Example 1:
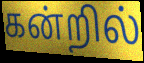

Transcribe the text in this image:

கன்றில்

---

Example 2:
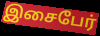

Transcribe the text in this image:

இசைபேர்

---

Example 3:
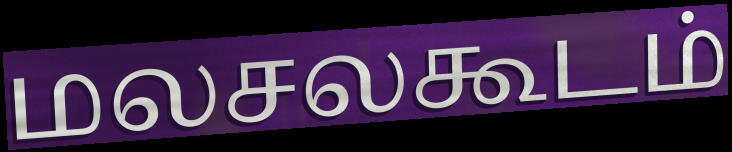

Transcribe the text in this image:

மலசலகூடம்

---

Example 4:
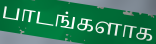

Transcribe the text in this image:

பாடங்களாக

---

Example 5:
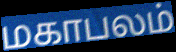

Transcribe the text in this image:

மகாபலம்